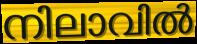
നിലാവിൽ